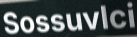
Sossuvlci